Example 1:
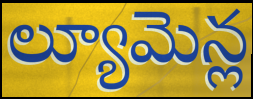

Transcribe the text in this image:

ల్యూమెన్ల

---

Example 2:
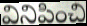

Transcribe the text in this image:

వినిపించి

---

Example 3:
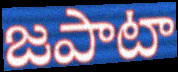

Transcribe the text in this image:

జపాటా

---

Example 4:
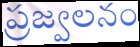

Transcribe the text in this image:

ప్రజ్వలనం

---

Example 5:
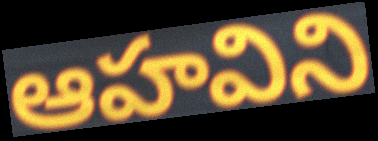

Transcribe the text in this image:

ఆహవిని